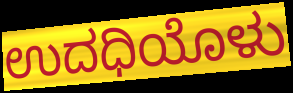
ಉದಧಿಯೊಳು